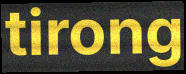
tirong